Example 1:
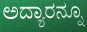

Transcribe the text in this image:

ಅದ್ಯಾರನ್ನೂ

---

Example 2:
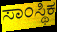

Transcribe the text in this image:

ಸಾಂಸ್ಥಿಕ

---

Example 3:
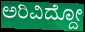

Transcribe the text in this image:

ಅರಿವಿದ್ದೋ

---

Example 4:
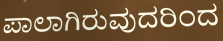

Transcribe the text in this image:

ಪಾಲಾಗಿರುವುದರಿಂದ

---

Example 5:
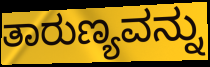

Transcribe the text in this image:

ತಾರುಣ್ಯವನ್ನು